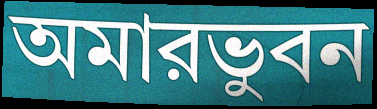
অমারভুবন